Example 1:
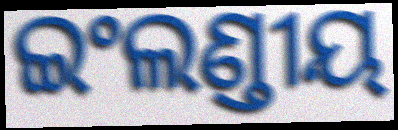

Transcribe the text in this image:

ଇଂଲଣ୍ଡୀୟ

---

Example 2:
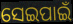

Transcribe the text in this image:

ସେଇପାଇଁ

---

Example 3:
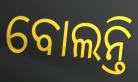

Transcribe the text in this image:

ବୋଲନ୍ତି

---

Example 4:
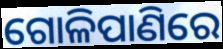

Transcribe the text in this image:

ଗୋଳିପାଣିରେ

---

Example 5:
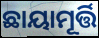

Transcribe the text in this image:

ଛାୟାମୂର୍ତ୍ତି